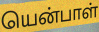
யென்பாள்